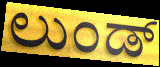
ಲುಂಡ್